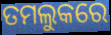
ତମଲୁକରେ